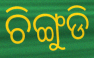
ଚିଙ୍ଗୁଡି